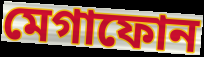
মেগাফোন